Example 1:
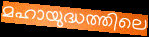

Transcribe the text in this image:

മഹായുദ്ധത്തിലെ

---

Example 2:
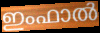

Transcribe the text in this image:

ഇംഫാൽ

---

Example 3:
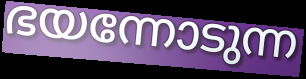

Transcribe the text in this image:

ഭയന്നോടുന്ന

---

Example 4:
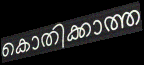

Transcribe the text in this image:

കൊതിക്കാത്ത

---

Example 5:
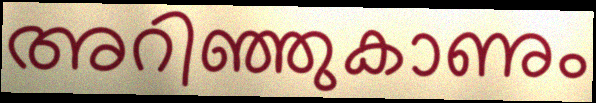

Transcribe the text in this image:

അറിഞ്ഞുകാണും